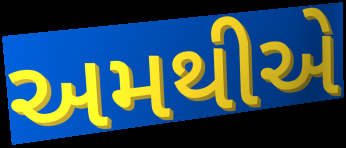
અમથીએ